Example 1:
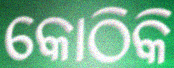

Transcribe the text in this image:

କୋଠିକି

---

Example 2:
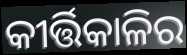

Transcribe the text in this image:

କୀର୍ତ୍ତିକାଳିର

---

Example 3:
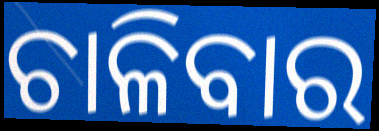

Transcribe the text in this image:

ଚାଳିବାର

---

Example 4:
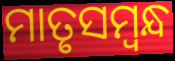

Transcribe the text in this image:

ମାତୃସମ୍ବନ୍ଧ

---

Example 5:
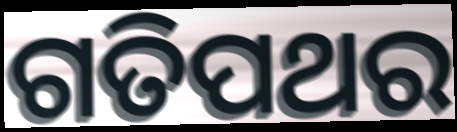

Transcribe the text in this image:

ଗତିପଥର